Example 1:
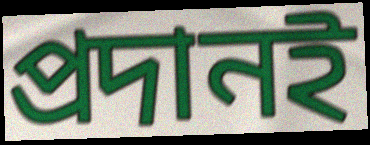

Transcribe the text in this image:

প্রদানই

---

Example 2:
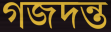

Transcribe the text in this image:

গজদন্ত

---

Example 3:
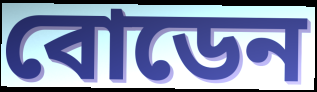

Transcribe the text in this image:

বোডেন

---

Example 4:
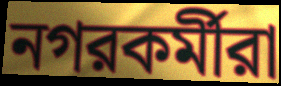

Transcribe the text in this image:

নগরকর্মীরা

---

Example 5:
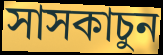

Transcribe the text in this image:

সাসকাচুন